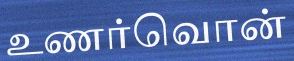
உணர்வொன்